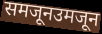
समजूनउमजून